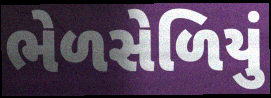
ભેળસેળિયું